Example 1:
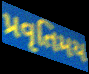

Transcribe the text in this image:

પ્રવૃતિમય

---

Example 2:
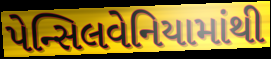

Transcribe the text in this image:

પેન્સિલવેનિયામાંથી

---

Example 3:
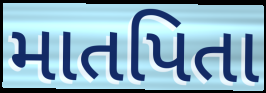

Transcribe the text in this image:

માતપિતા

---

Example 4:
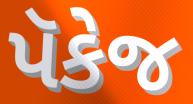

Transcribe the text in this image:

પૅકેજ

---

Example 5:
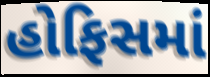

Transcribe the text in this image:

હોફિસમાં